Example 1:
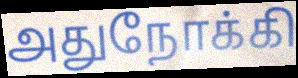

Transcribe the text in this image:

அதுநோக்கி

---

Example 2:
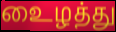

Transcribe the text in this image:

உைழத்து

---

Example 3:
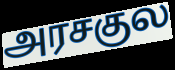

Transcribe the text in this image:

அரசகுல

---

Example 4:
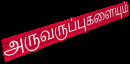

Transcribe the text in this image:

அருவருப்புகளையும்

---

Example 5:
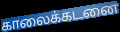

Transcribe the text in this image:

காலைக்கடனை